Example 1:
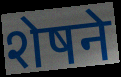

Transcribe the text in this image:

शेषने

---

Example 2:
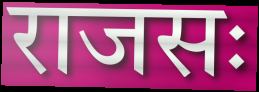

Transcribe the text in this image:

राजसः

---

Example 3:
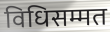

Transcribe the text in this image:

विधिसम्मत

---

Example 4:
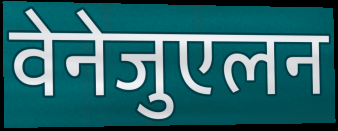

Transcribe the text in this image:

वेनेजुएलन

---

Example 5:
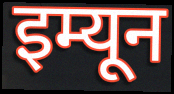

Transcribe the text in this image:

इम्‍यून